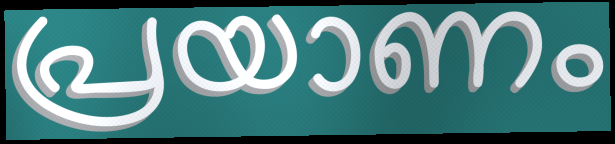
പ്രയാണം